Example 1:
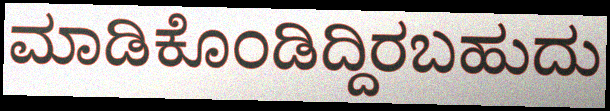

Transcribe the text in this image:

ಮಾಡಿಕೊಂಡಿದ್ದಿರಬಹುದು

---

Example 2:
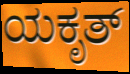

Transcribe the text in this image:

ಯಕೃತ್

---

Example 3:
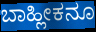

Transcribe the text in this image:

ಬಾಹ್ಲೀಕನೂ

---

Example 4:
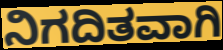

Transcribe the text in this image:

ನಿಗದಿತವಾಗಿ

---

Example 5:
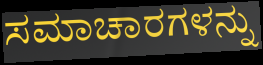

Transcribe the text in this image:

ಸಮಾಚಾರಗಳನ್ನು